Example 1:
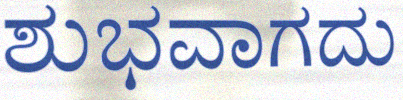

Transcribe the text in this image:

ಶುಭವಾಗದು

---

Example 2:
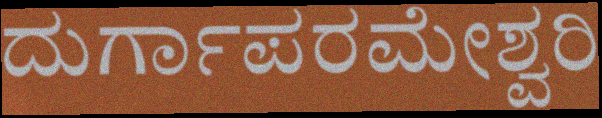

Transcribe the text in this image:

ದುರ್ಗಾಪರಮೇಶ್ವರಿ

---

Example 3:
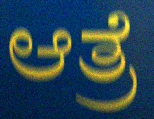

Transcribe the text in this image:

ಆತ್ರೆ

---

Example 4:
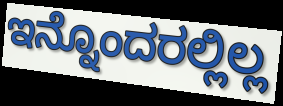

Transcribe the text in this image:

ಇನ್ನೊಂದರಲ್ಲಿಲ್ಲ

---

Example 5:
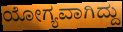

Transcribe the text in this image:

ಯೋಗ್ಯವಾಗಿದ್ದು